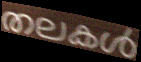
തലകൾ